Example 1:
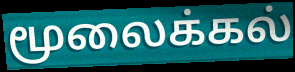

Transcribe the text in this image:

மூலைக்கல்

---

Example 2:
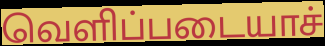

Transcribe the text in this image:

வெளிப்படையாச்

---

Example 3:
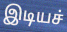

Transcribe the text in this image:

இடியச்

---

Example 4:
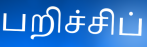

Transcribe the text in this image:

பறிச்சிப்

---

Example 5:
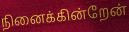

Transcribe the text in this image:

நினைக்கின்றேன்